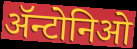
ॲन्टोनिओ